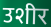
उशीर